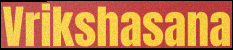
Vrikshasana